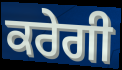
ਕਰੇਗੀ